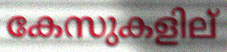
കേസുകളില്